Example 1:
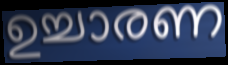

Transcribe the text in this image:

ഉച്ചാരണ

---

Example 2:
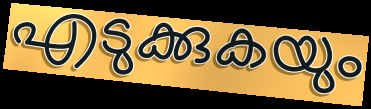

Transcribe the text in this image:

എടുക്കുകയും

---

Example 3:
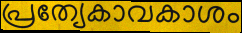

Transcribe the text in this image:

പ്രത്യേകാവകാശം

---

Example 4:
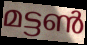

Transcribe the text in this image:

മട്ടൺ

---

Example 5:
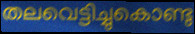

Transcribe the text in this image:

തലവെട്ടിച്ചുകൊണ്ടു